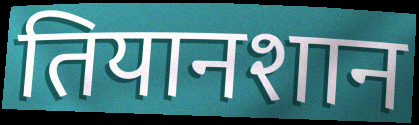
तियानशान